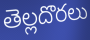
తెల్లదొరలు